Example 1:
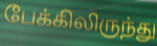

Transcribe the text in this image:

பேக்கிலிருந்து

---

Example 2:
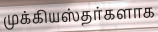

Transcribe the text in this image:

முக்கியஸ்தர்களாக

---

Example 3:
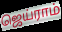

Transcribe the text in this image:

ஜெய்ராம்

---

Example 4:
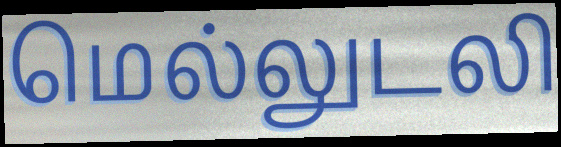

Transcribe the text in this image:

மெல்லுடலி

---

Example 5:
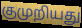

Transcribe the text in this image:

குமுறியது